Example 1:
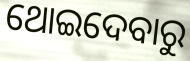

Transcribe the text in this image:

ଥୋଇଦେବାରୁ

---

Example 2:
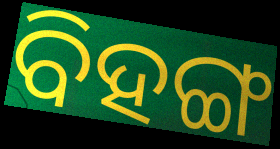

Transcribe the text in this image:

ବିହଙ୍ଗ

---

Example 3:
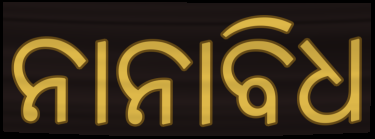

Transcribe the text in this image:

ନାନାବିଧ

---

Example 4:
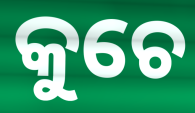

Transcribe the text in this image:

କୁଚେ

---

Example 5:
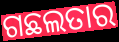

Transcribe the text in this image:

ଗଛଲତାର